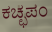
ಕಚ್ಛಪಂ